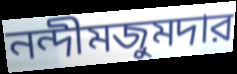
নন্দীমজুমদার